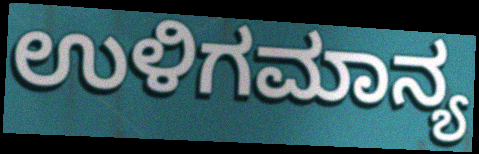
ಉಳಿಗಮಾನ್ಯ